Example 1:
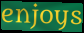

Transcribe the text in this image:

enjoys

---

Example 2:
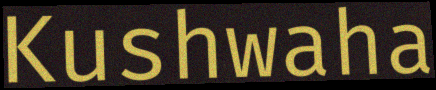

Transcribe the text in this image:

Kushwaha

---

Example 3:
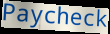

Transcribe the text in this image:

Paycheck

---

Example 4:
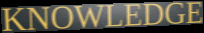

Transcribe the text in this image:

KNOWLEDGE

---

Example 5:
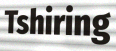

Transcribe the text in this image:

Tshiring